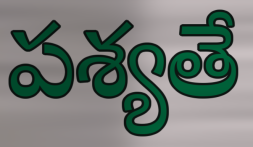
పశ్యతే